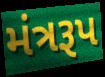
મંત્રરૂપ